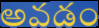
అవడం